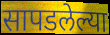
सापडलेल्या